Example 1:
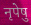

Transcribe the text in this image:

नृपेषु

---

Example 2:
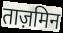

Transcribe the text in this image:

ताज़मिन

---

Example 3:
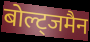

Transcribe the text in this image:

बोल्ट्जमैन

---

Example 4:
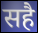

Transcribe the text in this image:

सहै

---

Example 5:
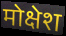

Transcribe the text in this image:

मोक्षेश